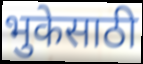
भुकेसाठी